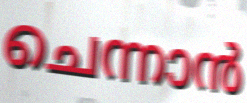
ചെന്നാൻ